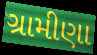
ગ્રામીણા